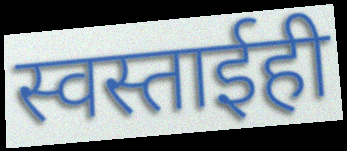
स्वस्ताईही